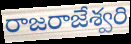
రాజరాజేశ్వరి